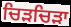
ਚਿੜਚਿੜਾ